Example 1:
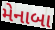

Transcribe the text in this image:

મેનાબા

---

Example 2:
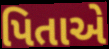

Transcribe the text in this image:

પિતાએ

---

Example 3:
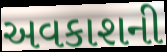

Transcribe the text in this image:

અવકાશની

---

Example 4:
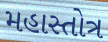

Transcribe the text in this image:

મહાસ્તોત્ર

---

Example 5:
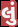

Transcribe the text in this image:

લું